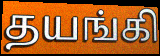
தயங்கி